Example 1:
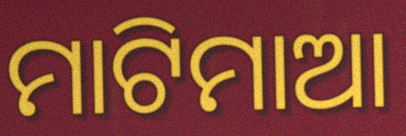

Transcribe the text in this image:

ମାଟିମାଆ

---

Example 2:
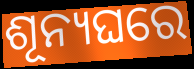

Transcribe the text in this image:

ଶୂନ୍ୟଘରେ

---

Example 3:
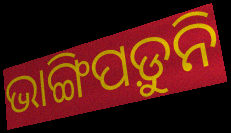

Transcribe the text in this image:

ଭାଙ୍ଗିପଡ଼ୁନି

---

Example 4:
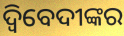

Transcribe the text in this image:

ଦ୍ଵିବେଦୀଙ୍କର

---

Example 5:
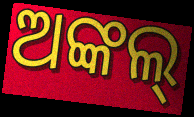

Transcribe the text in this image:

ଅଙ୍କଲ୍